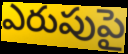
ఎరుపుపై